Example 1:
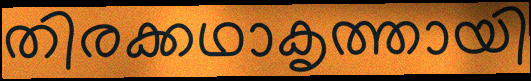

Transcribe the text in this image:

തിരക്കഥാകൃത്തായി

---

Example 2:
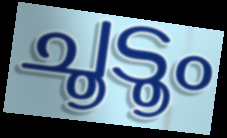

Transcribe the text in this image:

ചൂടൂം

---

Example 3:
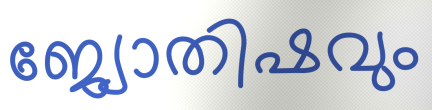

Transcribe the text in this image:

ജ്യോതിഷവും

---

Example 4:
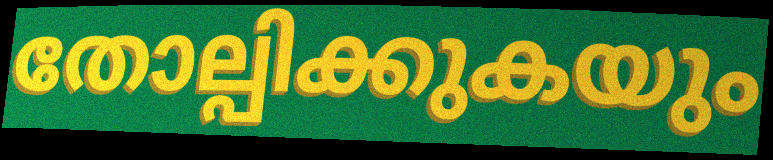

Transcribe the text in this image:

തോല്പിക്കുകയും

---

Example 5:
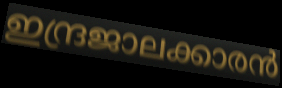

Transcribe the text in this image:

ഇന്ദ്രജാലക്കാരൻ